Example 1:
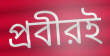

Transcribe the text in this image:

প্রবীরই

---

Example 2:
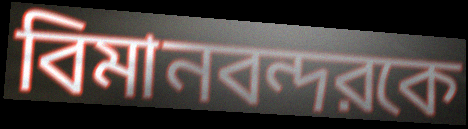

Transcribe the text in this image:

বিমানবন্দরকে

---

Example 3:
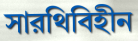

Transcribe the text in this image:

সারথিবিহীন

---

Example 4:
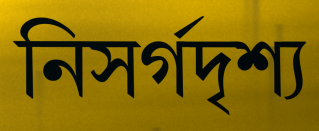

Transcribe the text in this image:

নিসর্গদৃশ্য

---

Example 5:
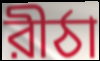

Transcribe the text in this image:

রীঠা